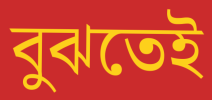
বুঝতেই